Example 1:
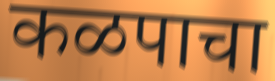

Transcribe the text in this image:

कळपाचा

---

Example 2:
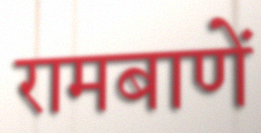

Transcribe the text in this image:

रामबाणें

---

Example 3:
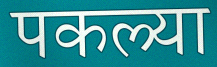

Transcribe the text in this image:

पकल्या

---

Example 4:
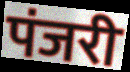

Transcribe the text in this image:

पंजरी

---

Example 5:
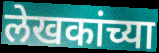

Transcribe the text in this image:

लेखकांच्या